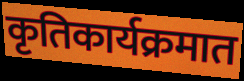
कृतिकार्यक्रमात